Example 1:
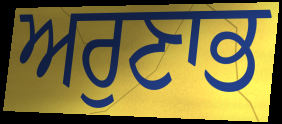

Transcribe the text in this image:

ਅਰੁਣਾਭ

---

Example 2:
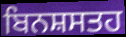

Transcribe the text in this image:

ਬਿਨਸ਼ਸਤਹ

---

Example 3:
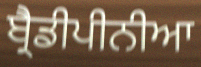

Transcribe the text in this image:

ਬ੍ਰੈਡੀਪੀਨੀਆ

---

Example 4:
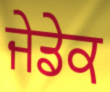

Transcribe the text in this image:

ਜੇਡੇਕ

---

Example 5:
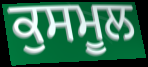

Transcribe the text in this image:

ਕੁਸਮੂਲ